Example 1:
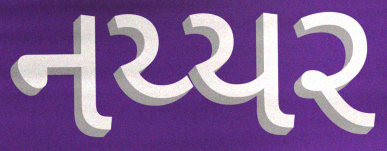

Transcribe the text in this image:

નય્યર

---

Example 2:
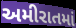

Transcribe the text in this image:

અમીરાતમાં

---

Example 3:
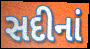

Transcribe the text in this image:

સદીનાં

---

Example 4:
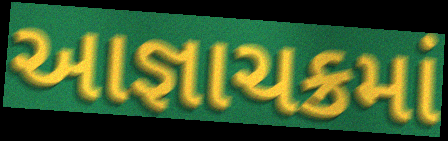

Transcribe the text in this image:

આજ્ઞાચક્રમાં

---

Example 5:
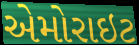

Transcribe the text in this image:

એમોરાઇટ